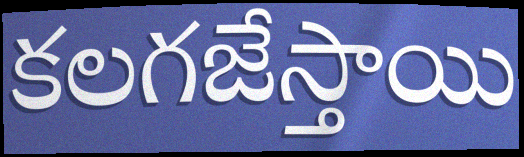
కలగజేస్తాయి